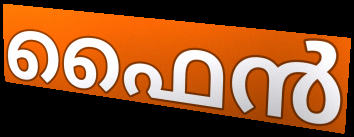
ഫൈൻ